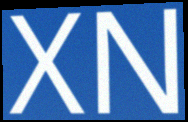
XN